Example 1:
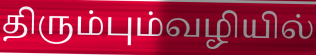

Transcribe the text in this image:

திரும்பும்வழியில்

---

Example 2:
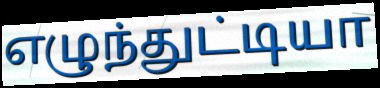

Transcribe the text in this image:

எழுந்துட்டியா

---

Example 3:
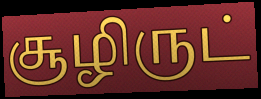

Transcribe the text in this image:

சூழிருட்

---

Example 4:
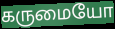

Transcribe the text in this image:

கருமையோ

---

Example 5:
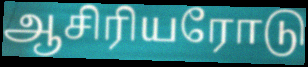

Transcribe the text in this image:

ஆசிரியரோடு